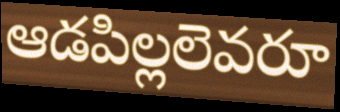
ఆడపిల్లలెవరూ